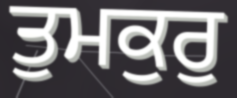
ਤੁਮਕੁਰੁ